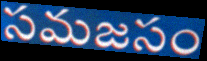
సమజసం